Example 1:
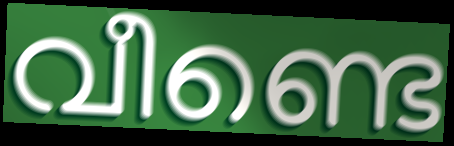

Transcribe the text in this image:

വീണ്ടെ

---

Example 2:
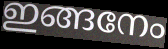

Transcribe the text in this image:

ഇങ്ങനേം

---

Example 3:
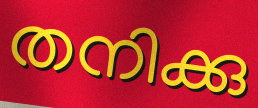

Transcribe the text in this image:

തനിക്കു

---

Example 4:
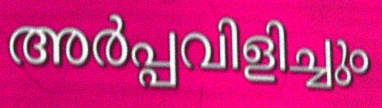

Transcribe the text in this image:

അർപ്പവിളിച്ചും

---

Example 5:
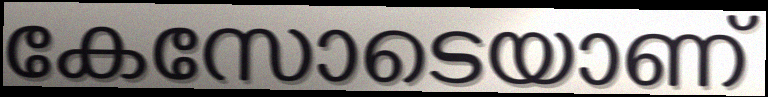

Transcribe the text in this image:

കേസോടെയാണ്